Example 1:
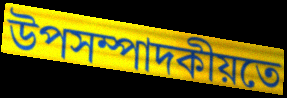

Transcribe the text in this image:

উপসম্পাদকীয়তে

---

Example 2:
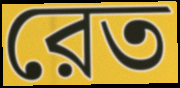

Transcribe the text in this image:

রেত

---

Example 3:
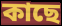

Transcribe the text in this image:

কাছে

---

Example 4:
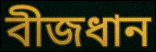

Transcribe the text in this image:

বীজধান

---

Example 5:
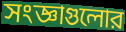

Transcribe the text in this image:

সংজ্ঞাগুলোর